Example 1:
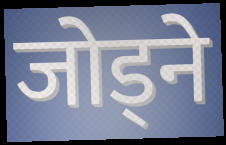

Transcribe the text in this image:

जोड्ने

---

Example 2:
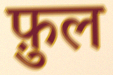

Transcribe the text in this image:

फ़ुल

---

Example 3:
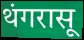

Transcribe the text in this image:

थंगरासू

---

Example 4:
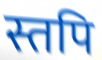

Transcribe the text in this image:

स्‍तपि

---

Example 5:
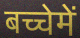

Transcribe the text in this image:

बच्चेमें